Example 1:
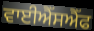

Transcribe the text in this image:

ਵਾਈਐੱਸਐੱਫ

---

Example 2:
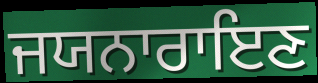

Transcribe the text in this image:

ਜਯਨਾਰਾਇਣ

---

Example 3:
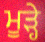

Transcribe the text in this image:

ਮੂੜ੍ਹੇ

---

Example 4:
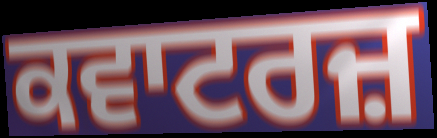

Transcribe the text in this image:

ਕਵਾਟਰਜ਼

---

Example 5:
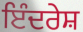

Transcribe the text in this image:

ਇੰਦਰੇਸ਼